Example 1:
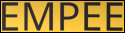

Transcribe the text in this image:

EMPEE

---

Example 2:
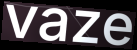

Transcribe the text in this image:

vaze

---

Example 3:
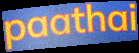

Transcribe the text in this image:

paathai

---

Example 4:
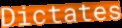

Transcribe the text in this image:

Dictates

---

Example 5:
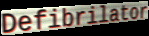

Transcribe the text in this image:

Defibrilator